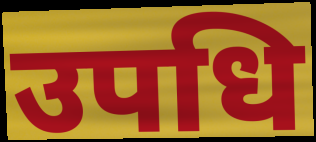
उपधि